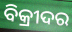
ବିକ୍ରୀଦର